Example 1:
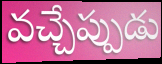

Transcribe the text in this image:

వచ్చేప్పుడు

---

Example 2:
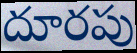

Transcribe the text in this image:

దూరపు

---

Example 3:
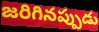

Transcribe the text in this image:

జరిగినప్పుడు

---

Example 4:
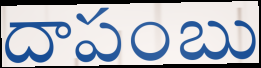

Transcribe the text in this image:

దాపంబు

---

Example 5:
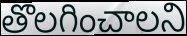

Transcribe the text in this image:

తొలగించాలని